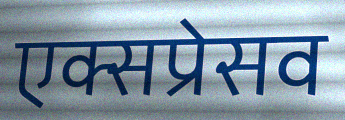
एक्सप्रेसव